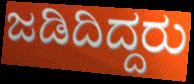
ಜಡಿದಿದ್ದರು